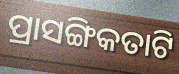
ପ୍ରାସଙ୍ଗିକତାଟି